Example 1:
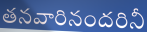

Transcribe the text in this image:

తనవారినందరినీ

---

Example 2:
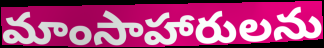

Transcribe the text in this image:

మాంసాహారులను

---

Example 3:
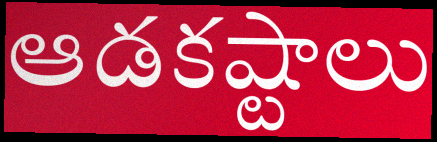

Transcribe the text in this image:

ఆడకష్టాలు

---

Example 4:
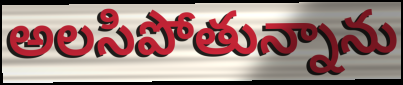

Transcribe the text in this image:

అలసిపోతున్నాను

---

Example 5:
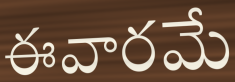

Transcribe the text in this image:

ఈవారమే